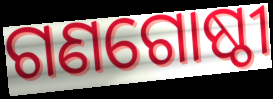
ଗଣଗୋଷ୍ଠୀ